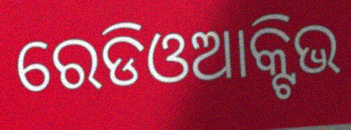
ରେଡିଓଆକ୍ଟିଭ